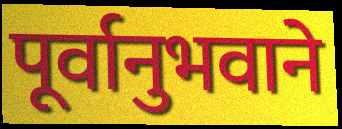
पूर्वानुभवाने